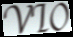
VIO